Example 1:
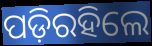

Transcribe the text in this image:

ପଡ଼ିରହିଲେ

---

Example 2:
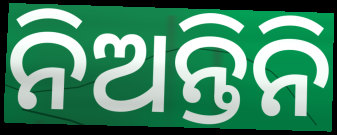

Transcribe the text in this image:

ନିଅନ୍ତିନି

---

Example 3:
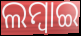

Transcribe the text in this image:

ଲମ୍ବାଇ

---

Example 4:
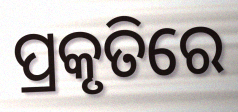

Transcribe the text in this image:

ପ୍ରକୃତିରେ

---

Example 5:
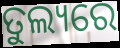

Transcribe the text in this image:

ତୁଲ୍ୟରେ